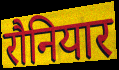
रौनियार